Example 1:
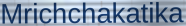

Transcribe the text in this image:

Mrichchakatika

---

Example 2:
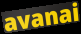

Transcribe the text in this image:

avanai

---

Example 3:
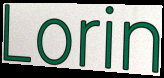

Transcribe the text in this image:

Lorin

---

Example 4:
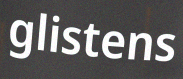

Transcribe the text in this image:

glistens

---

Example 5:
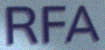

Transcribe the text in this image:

RFA